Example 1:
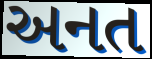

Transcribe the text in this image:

અનત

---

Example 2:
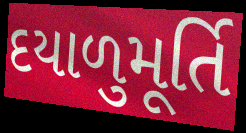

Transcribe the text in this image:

દયાળુમૂર્તિ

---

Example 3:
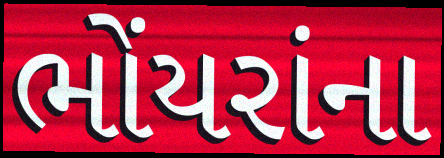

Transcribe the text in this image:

ભોંયરાંના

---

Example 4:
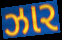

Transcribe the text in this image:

ઝાર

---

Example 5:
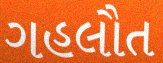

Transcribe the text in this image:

ગહલૌત